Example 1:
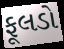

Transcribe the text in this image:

ફૂલડો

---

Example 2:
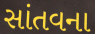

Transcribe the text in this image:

સાંતવના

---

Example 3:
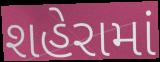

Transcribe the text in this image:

શહેરામાં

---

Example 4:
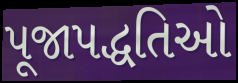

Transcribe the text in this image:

પૂજાપદ્ધતિઓ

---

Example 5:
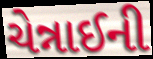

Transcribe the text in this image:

ચેન્નાઈની